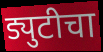
ड्युटीचा